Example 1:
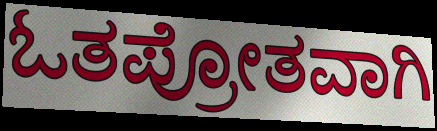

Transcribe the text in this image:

ಓತಪ್ರೋತವಾಗಿ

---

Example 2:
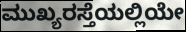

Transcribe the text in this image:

ಮುಖ್ಯರಸ್ತೆಯಲ್ಲಿಯೇ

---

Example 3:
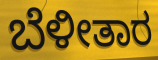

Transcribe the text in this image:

ಬೆಳೀತಾರ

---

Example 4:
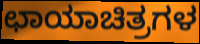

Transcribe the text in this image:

ಛಾಯಾಚಿತ್ರಗಳ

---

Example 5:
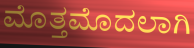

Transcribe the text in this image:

ಮೊತ್ತಮೊದಲಾಗಿ